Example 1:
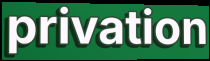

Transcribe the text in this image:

privation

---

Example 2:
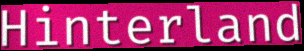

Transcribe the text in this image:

Hinterland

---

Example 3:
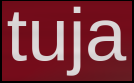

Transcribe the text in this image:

tuja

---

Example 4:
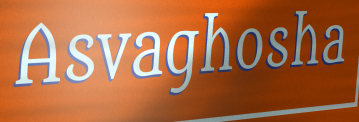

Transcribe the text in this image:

Asvaghosha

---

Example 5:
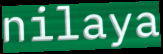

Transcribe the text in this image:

nilaya